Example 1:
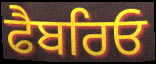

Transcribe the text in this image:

ਫੈਬਰਿਓ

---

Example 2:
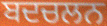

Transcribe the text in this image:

ਬਦਚਲਨ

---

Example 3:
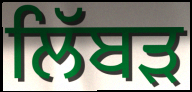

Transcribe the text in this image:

ਲਿੱਬੜ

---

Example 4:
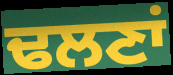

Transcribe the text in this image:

ਢਲਣਾਂ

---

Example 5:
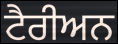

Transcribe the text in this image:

ਟੈਰੀਅਨ